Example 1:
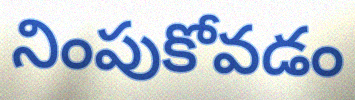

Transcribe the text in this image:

నింపుకోవడం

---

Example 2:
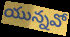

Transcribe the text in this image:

యున్నవో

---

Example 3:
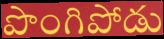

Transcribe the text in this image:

పొంగిపోడు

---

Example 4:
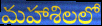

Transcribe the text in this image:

మహాశిలలో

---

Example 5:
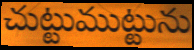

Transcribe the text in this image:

చుట్టుముట్టును